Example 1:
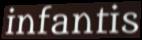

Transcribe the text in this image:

infantis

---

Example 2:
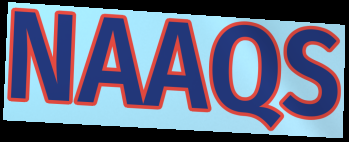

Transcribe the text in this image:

NAAQS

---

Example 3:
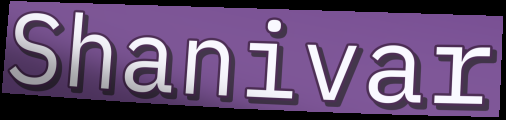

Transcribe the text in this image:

Shanivar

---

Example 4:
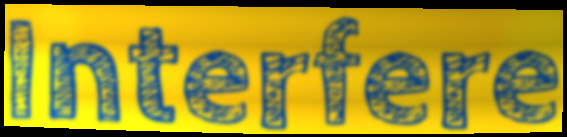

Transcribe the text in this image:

Interfere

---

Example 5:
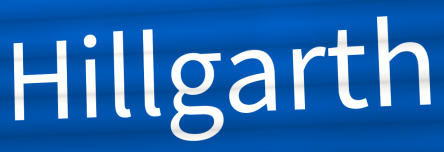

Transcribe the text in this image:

Hillgarth